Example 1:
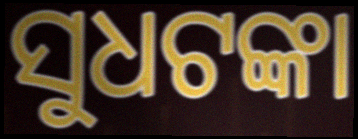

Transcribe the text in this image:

ସୁଧଟଙ୍କା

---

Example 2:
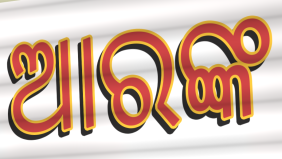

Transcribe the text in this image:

ଆରଙ୍କ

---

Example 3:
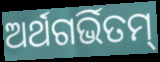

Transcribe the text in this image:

ଅର୍ଥଗର୍ଭିତମ୍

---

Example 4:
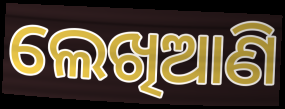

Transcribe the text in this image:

ଲେଖିଆଣି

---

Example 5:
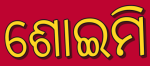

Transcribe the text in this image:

ଶୋଇମି